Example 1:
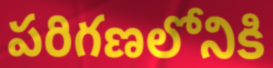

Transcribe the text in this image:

పరిగణలోనికి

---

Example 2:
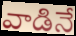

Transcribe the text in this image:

వాడినే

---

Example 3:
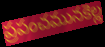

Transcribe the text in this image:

ప్రపంచమునకెల్ల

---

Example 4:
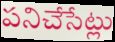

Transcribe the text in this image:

పనిచేసేట్లు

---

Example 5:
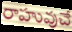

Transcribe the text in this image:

రాహువుచే